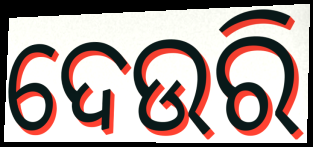
ଦେଉରି